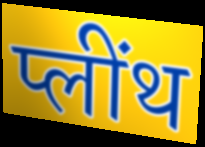
प्लींथ